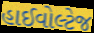
હાઈવોલ્ટેજ